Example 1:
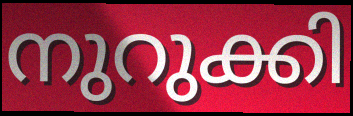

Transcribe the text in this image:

നുറുക്കി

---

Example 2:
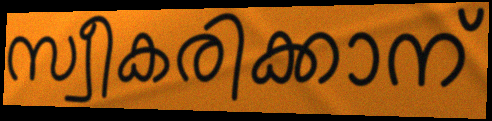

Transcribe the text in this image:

സ്വീകരിക്കാന്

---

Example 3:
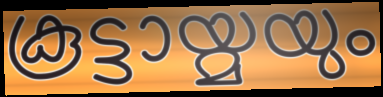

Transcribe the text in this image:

കൂട്ടായ്മയും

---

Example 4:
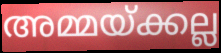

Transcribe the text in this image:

അമ്മയ്ക്കല്ല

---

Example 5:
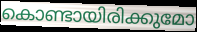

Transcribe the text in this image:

കൊണ്ടായിരിക്കുമോ